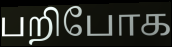
பறிபோக